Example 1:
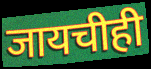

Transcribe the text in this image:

जायचीही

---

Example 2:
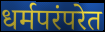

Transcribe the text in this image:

धर्मपरंपरेत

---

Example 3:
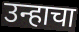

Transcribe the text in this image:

उन्हाचा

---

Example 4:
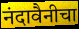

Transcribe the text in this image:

नंदावैनीचा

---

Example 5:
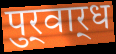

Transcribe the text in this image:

पुर्वार्ध